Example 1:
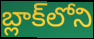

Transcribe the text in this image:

బ్లాక్‌లోని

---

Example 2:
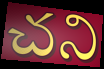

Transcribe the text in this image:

చని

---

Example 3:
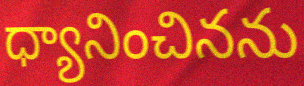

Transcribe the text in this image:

ధ్యానించినను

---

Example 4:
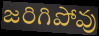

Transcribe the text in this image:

జరిగిపోవు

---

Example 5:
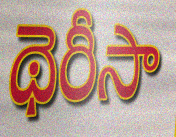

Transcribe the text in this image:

థెరీసా